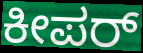
ಕೀಪರ್